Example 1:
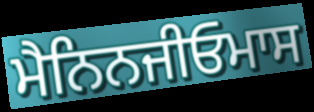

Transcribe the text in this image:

ਮੈਨਿਨਜੀਓਮਾਸ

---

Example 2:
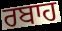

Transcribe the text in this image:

ਰਬਾਹ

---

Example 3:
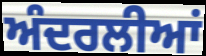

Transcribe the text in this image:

ਅੰਦਰਲੀਆਂ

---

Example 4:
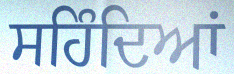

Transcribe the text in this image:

ਸਹਿੰਦਿਆਂ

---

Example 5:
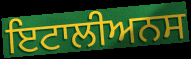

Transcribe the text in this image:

ਇਟਾਲੀਅਨਸ